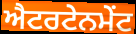
ਐਟਰਟੇਨਮੇਂਟ